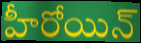
హీరోయిన్